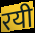
रयी